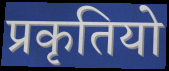
प्रकृतियो